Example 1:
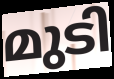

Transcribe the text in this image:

മുടി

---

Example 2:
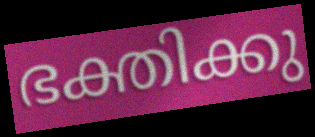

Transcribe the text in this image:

ഭക്തിക്കു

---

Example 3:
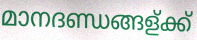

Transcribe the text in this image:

മാനദണ്ഡങ്ങള്ക്ക്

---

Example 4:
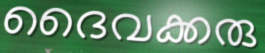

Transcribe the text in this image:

ദൈവക്കരു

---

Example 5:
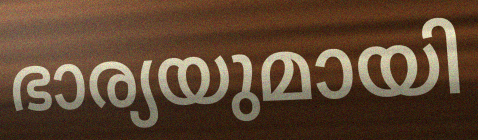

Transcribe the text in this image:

ഭാര്യയുമായി